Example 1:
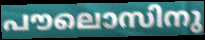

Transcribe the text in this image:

പൗലൊസിനു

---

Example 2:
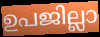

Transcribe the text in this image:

ഉപജില്ലാ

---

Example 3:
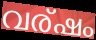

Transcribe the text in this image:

വര്ഷം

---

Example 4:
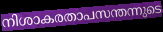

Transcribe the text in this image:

നിശാകരതാപസന്തന്നുടെ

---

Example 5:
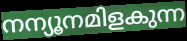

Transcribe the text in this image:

നന്യൂനമിളകുന്ന